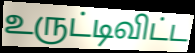
உருட்டிவிட்ட